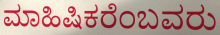
ಮಾಹಿಷಿಕರೆಂಬವರು